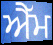
ਐੈੱਮ